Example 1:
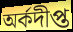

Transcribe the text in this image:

অর্কদীপ্ত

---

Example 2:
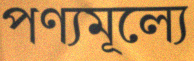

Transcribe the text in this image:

পণ্যমূল্যে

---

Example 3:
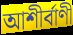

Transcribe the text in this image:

আশীর্বাণী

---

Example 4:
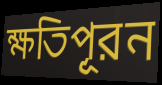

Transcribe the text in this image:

ক্ষতিপূরন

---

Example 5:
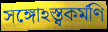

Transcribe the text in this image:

সঙ্গোঽস্ত্বকর্মণি